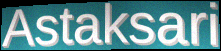
Astaksari